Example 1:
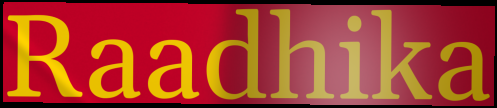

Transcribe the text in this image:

Raadhika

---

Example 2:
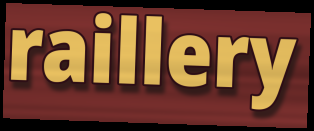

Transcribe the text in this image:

raillery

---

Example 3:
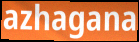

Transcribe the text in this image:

azhagana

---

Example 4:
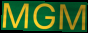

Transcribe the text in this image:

MGM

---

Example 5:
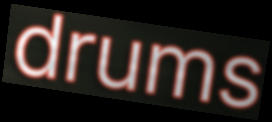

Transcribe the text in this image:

drums